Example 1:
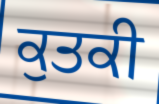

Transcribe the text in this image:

ਕੁਤਕੀ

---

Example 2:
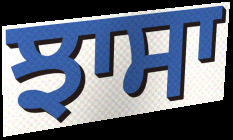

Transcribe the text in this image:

ਝਾਸਾ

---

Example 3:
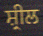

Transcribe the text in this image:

ਸ਼੍ਰੀਲ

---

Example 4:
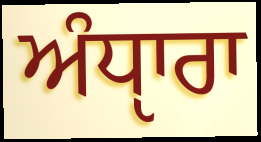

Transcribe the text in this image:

ਅੰਧੵਾਰਾ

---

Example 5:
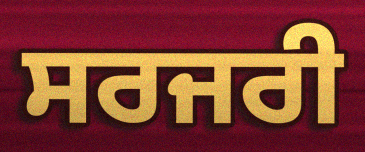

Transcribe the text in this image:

ਸਰਜਰੀ